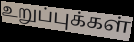
உறுப்புக்கள்